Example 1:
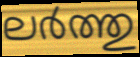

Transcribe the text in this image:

ലർത്തു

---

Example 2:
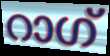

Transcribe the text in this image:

റാഗ്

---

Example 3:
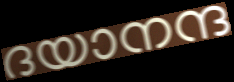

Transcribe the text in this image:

ദയാനന്ദ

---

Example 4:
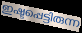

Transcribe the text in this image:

ഇഷ്ടപ്പെട്ടിരുന്ന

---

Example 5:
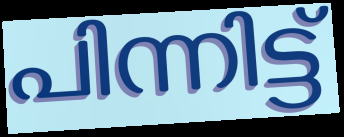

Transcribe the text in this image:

പിന്നിട്ട്